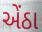
એંઠા